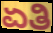
ಏತಿ